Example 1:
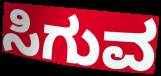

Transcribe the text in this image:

ಸಿಗುವ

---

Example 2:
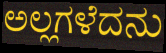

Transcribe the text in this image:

ಅಲ್ಲಗಳೆದನು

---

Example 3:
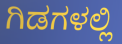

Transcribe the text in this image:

ಗಿಡಗಳಲ್ಲಿ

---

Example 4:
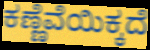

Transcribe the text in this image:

ಕಣ್ಣೆವೆಯಿಕ್ಕದೆ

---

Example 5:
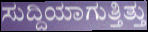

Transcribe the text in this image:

ಸುದ್ದಿಯಾಗುತ್ತಿತ್ತು